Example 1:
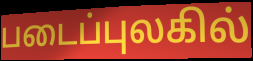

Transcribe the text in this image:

படைப்புலகில்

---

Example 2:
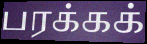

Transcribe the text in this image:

பரக்கக்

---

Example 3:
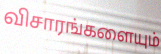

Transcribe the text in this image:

விசாரங்களையும்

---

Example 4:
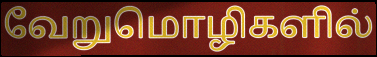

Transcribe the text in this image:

வேறுமொழிகளில்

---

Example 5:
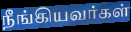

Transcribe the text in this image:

நீங்கியவர்கள்